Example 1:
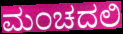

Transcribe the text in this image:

ಮಂಚದಲಿ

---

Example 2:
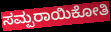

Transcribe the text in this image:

ಸಮ್ಪರಾಯಿಕೋತಿ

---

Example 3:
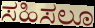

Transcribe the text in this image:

ಸಹಿಸಲೂ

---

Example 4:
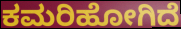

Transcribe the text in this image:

ಕಮರಿಹೋಗಿದೆ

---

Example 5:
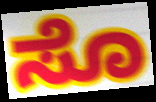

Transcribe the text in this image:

ಸೊ